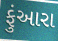
ફુંઆરા